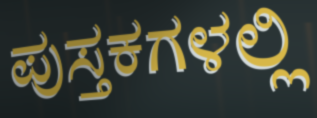
ಪುಸ್ತಕಗಳಲ್ಲಿ